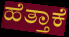
ಹೆತ್ತಾಕೆ